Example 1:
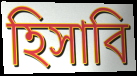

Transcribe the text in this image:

হিসাবি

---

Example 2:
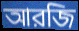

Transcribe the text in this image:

আরজি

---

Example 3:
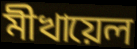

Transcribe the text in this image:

মীখায়েল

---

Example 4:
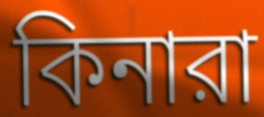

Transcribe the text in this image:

কিনারা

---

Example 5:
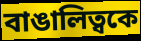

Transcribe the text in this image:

বাঙালিত্বকে